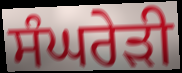
ਸੰਘਰੇੜੀ